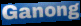
Ganong